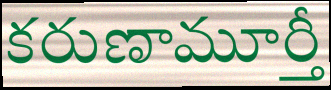
కరుణామూర్తీ